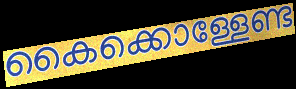
കൈക്കൊള്ളേണ്ട